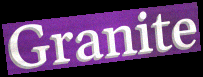
Granite